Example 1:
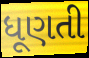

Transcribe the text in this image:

ધૂણતી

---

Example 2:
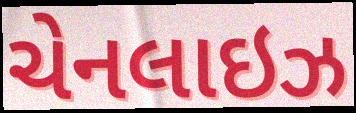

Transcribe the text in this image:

ચેનલાઇઝ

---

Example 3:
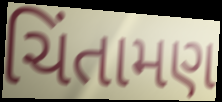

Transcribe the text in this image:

ચિંતામણ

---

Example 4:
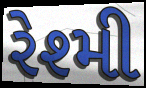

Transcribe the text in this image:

રેશ્મી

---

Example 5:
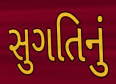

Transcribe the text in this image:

સુગતિનું